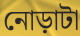
নোড়াটা